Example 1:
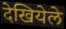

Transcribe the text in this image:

देखियेले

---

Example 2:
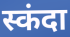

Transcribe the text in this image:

स्कंदा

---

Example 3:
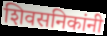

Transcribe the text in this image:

शिवसनिकांनी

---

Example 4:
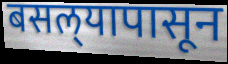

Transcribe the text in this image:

बसल्यापासून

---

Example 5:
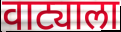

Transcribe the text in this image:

वाट्याला